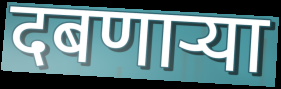
दबणाऱ्या